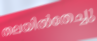
തലയിൽതേച്ചു